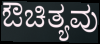
ಔಚಿತ್ಯವು